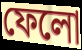
ফেলো